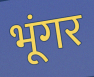
भूंगर